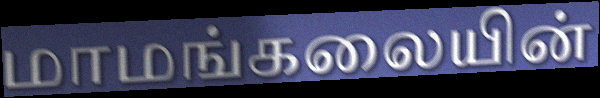
மாமங்கலையின்